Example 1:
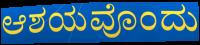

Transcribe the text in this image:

ಆಶಯವೊಂದು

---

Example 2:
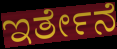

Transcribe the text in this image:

ಇರ್ತೇನೆ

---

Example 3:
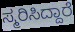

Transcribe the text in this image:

ಸ್ಮರಿಸಿದ್ದಾರೆ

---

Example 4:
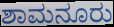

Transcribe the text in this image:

ಶಾಮನೂರು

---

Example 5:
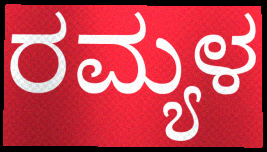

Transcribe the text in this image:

ರಮ್ಯಳ